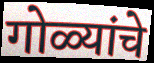
गोळ्यांचे